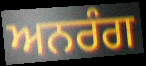
ਅਨਰੰਗ